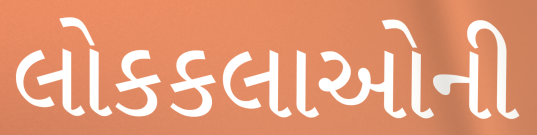
લોકકલાઓની